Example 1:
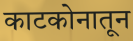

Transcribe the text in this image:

काटकोनातून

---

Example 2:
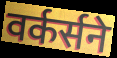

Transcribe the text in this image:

वर्कर्सने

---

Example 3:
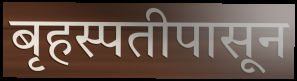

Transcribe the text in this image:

बृहस्पतीपासून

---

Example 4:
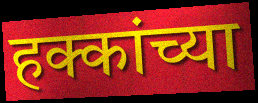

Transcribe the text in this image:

हक्कांच्या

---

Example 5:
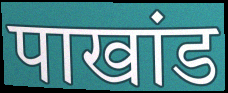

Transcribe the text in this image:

पाखांड